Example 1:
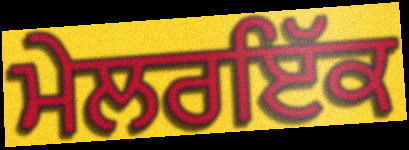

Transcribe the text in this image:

ਮੇਲਰਇੱਕ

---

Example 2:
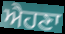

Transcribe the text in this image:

ਐਹਣਾ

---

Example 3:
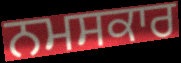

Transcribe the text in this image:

ਨਮਸਕਾਰ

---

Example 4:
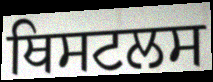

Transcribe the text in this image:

ਥਿਸਟਲਸ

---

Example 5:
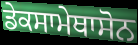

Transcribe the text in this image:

ਡੇਕਸਾਮੇਥਾਸੋਨ